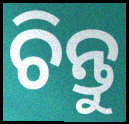
ଚିନ୍ତୁ